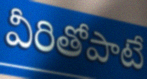
వీరితోపాటే